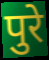
पुरे